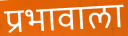
प्रभावाला